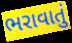
ભરાવાતું